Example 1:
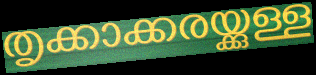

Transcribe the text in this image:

തൃക്കാക്കരയ്ക്കുള്ള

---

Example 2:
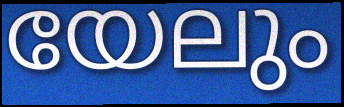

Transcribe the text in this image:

യേലും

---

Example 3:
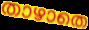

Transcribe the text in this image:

താഴാതെ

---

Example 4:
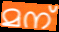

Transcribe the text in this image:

മന്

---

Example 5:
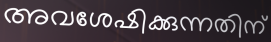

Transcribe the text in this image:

അവശേഷിക്കുന്നതിന്